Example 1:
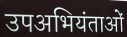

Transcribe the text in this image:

उपअभियंताओं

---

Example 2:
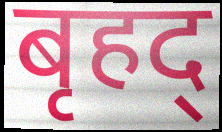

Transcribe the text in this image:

बृहद्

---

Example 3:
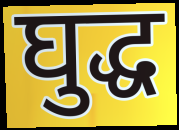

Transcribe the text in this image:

घुद्ध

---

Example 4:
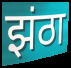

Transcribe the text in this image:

झंठा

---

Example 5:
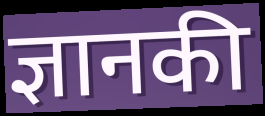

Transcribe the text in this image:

ज्ञानकी